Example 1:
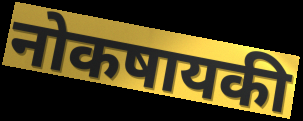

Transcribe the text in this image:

नोकषायकी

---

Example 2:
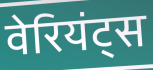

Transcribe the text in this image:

वेरियंट्स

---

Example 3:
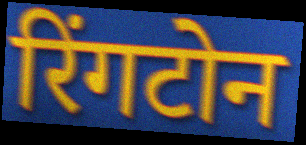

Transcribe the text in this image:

रिंगटोन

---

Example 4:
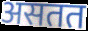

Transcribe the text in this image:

असतत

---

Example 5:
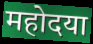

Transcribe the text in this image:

महोदया